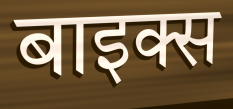
बाइक्स